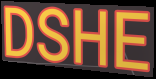
DSHE